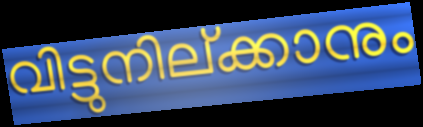
വിട്ടുനില്ക്കാനും